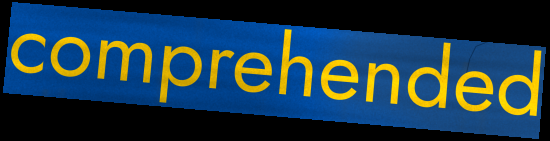
comprehended